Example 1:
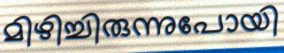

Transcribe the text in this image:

മിഴിച്ചിരുന്നുപോയി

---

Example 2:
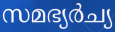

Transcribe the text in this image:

സമഭ്യർച്യ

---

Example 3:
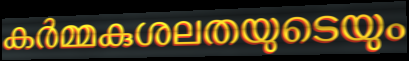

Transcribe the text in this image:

കർമ്മകുശലതയുടെയും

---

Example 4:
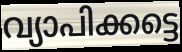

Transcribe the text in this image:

വ്യാപിക്കട്ടെ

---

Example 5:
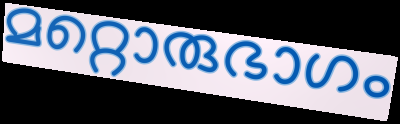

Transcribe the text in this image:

മറ്റൊരുഭാഗം